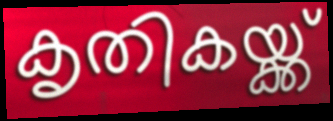
കൃതികയ്ക്ക്